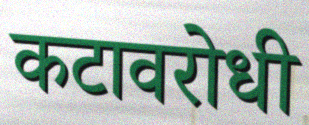
कटावरोधी